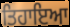
ਤਿਹਾਇਆ